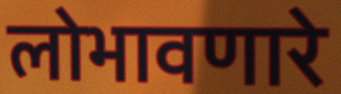
लोभावणारे